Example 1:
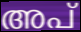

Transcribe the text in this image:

അപ്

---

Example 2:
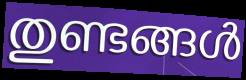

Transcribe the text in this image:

തുണ്ടങ്ങൾ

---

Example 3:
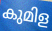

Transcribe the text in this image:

കുമിള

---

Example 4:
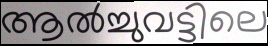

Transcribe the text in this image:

ആൽച്ചുവട്ടിലെ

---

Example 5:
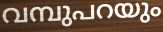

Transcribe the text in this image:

വമ്പുപറയും